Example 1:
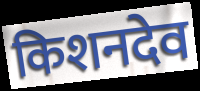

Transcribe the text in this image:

किशनदेव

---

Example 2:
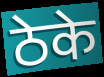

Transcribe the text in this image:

ठेके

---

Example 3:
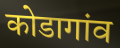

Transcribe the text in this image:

कोडागांव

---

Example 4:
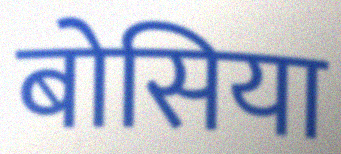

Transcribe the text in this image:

बोसिया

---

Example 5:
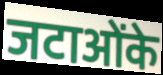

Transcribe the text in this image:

जटाओंके